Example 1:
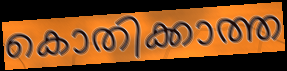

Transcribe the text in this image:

കൊതിക്കാത്ത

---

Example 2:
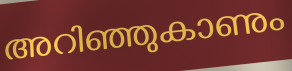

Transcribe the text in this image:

അറിഞ്ഞുകാണും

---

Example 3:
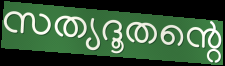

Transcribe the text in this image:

സത്യദൂതന്റെ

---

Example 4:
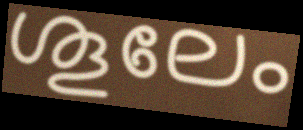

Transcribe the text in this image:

ശൂലേം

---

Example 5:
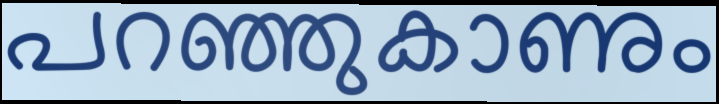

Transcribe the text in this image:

പറഞ്ഞുകാണും